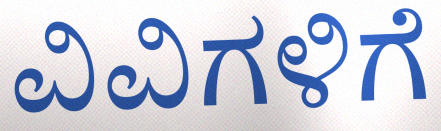
ವಿವಿಗಳಿಗೆ